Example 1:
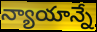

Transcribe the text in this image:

న్యాయాన్నే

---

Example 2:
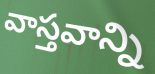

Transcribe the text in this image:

వాస్తవాన్ని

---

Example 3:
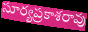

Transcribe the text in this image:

సూర్యప్రకాశరావు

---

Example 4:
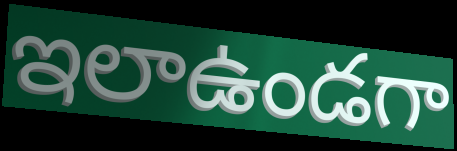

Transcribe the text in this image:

ఇలాఉండగా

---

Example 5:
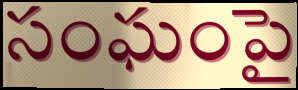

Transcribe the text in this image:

సంఘంపై